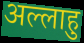
अल्लाहु